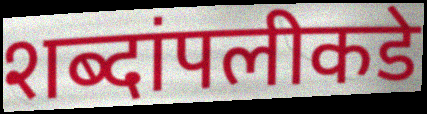
शब्दांपलीकडे